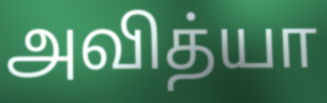
அவித்யா